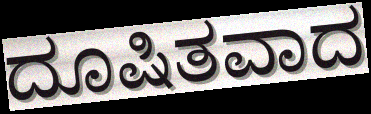
ದೂಷಿತವಾದ